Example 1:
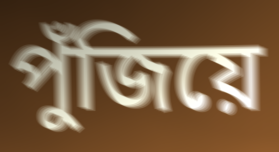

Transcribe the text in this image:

পুঁজিয়ে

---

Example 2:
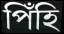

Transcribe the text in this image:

পিঁহি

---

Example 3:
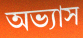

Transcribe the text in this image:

অভ্যাস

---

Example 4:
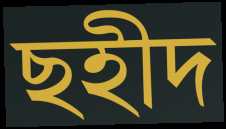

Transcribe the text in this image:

ছহীদ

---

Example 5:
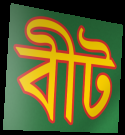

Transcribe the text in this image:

বীট